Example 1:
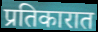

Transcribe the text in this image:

प्रतिकारात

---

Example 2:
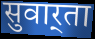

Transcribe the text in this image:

सुवार्ता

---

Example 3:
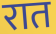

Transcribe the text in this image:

रात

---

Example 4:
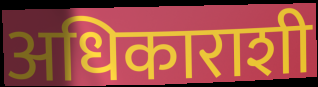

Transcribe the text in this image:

अधिकाराशी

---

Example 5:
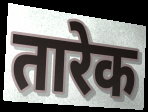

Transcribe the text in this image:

तारेक